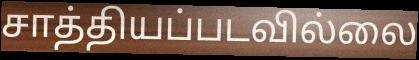
சாத்தியப்படவில்லை